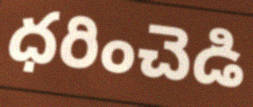
ధరించెడి